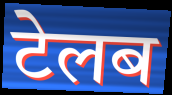
टेलब